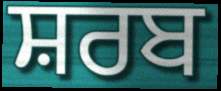
ਸ਼ਰਬ